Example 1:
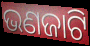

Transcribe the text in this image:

ଭଣଜାଟି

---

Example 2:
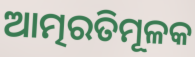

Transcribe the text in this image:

ଆତ୍ମରତିମୂଳକ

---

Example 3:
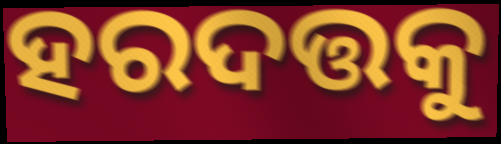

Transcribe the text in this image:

ହରଦତ୍ତକୁ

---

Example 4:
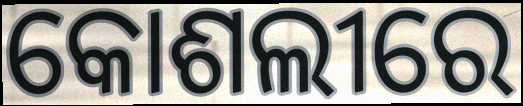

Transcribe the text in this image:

କୋଶଲୀରେ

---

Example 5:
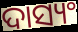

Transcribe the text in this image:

ଦାସ୍ୟଂ